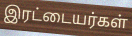
இரட்டையர்கள்